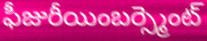
ఫీజురీయింబర్స్మెంట్